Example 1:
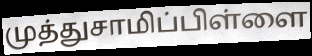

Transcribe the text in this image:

முத்துசாமிப்பிள்ளை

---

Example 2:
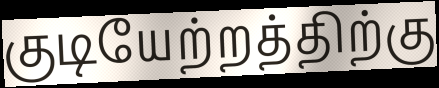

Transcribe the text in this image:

குடியேற்றத்திற்கு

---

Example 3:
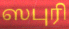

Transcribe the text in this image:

ஸபுரி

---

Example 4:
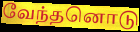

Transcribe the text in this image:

வேந்தனொடு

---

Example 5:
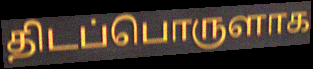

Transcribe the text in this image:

திடப்பொருளாக